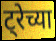
ट्रेच्या